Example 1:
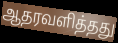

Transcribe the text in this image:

ஆதரவளித்தது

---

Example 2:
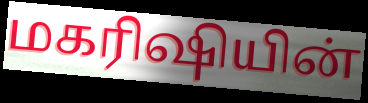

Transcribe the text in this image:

மகரிஷியின்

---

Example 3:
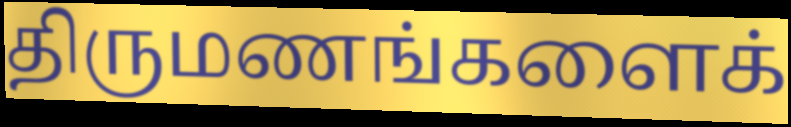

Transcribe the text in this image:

திருமணங்களைக்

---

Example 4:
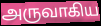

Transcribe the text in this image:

அருவாகிய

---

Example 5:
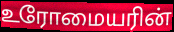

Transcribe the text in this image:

உரோமையரின்